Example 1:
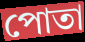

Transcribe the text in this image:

পোতা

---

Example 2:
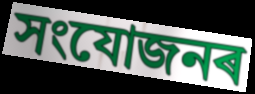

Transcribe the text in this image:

সংযোজনৰ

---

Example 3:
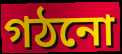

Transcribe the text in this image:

গঠনো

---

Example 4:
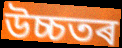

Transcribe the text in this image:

উচ্চতৰ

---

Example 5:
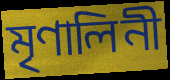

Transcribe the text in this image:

মৃণালিনী